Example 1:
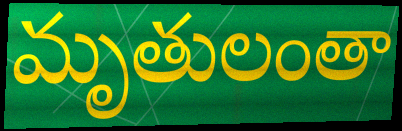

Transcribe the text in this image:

మృతులంతా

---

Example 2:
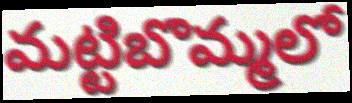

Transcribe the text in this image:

మట్టిబొమ్మలో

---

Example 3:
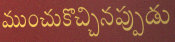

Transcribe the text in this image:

ముంచుకొచ్చినప్పుడు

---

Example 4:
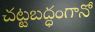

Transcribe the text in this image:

చట్టబద్ధంగానో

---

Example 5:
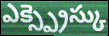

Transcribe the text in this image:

ఎక్స్ప్రెస్కు